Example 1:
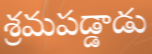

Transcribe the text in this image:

శ్రమపడ్డాడు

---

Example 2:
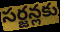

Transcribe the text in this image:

సర్జన్లకు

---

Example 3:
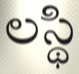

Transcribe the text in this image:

లస్థి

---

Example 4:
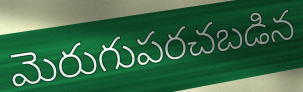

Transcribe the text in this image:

మెరుగుపరచబడిన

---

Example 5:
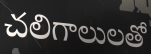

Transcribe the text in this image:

చలిగాలులతో